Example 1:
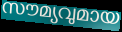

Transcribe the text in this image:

സൗമ്യവുമായ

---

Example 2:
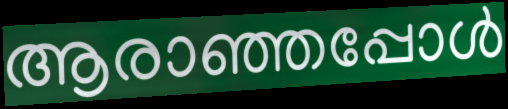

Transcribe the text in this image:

ആരാഞ്ഞപ്പോൾ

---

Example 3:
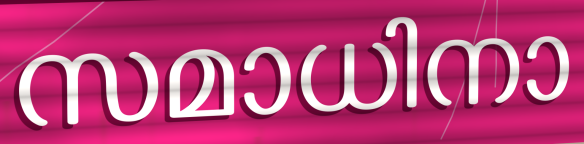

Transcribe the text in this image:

സമാധിനാ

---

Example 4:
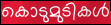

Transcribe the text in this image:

കൊടുമുടികൾ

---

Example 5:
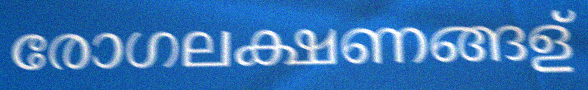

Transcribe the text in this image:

രോഗലക്ഷണങ്ങള്